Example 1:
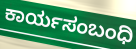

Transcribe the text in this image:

ಕಾರ್ಯಸಂಬಂಧಿ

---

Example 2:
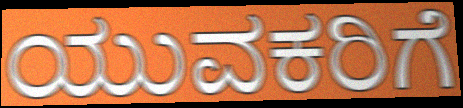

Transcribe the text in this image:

ಯುವಕರಿಗೆ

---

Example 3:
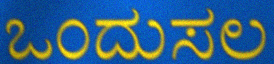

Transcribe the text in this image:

ಒಂದುಸಲ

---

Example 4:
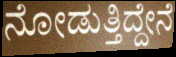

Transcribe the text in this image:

ನೋಡುತ್ತಿದ್ದೇನೆ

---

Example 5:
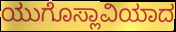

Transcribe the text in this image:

ಯುಗೊಸ್ಲಾವಿಯಾದ